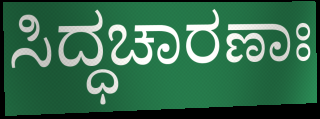
ಸಿದ್ಧಚಾರಣಾಃ